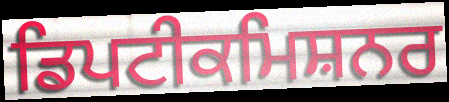
ਡਿਪਟੀਕਮਿਸ਼ਨਰ